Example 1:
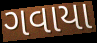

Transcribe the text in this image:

ગવાયા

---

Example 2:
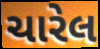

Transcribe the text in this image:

ચારેલ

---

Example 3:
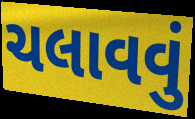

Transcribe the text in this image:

ચલાવવું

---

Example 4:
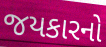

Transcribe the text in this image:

જયકારનો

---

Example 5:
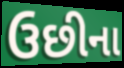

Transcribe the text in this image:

ઉછીના